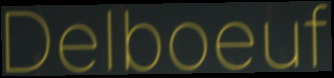
Delboeuf